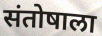
संतोषाला